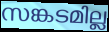
സങ്കടമില്ല